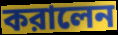
করালেন